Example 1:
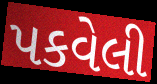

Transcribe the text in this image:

પકવેલી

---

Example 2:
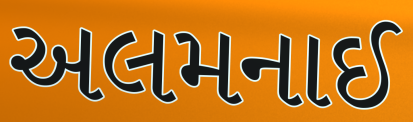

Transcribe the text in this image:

અલમનાઈ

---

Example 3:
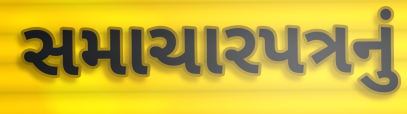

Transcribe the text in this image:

સમાચારપત્રનું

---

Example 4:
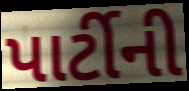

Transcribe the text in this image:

પાર્ટીની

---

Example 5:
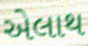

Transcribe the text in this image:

એલાથ